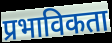
प्रभाविकता